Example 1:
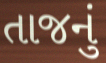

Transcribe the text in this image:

તાજનું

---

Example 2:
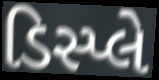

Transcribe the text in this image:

ડિસ્પ્લે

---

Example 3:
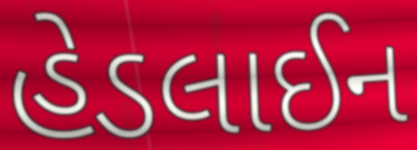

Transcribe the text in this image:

હેડલાઈન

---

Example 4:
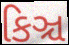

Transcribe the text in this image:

કિઞ્ચ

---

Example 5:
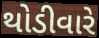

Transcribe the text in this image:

થોડીવારે